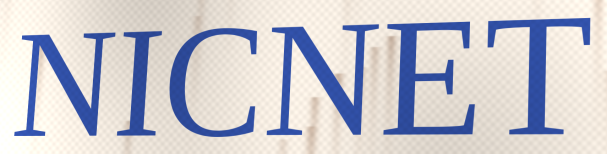
NICNET